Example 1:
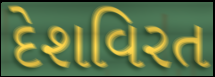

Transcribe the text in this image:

દેશવિરત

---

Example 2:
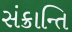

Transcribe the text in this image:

સંક્રાન્તિ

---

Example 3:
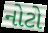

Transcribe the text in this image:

નોટો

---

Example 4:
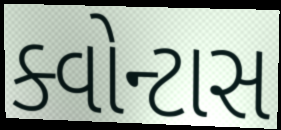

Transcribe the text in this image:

ક્વોન્ટાસ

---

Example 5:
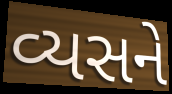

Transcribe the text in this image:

વ્યસને